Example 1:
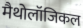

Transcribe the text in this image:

मैथोलॉजिकल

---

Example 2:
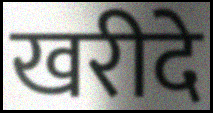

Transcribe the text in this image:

खरीदे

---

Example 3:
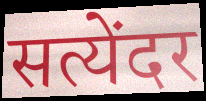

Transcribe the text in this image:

सत्येंदर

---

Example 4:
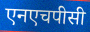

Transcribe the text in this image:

एनएचपीसी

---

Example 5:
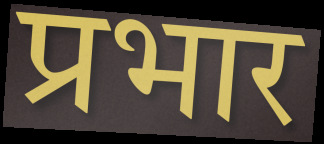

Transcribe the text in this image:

प्रभार